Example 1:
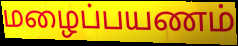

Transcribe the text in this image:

மழைப்பயணம்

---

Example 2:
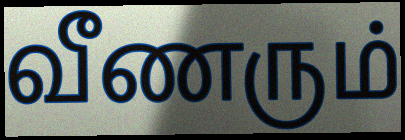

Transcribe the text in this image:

வீணரும்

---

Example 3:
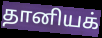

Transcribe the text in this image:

தானியக்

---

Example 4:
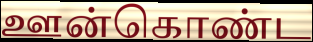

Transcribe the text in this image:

ஊன்கொண்ட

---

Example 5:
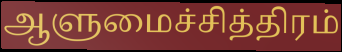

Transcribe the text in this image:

ஆளுமைச்சித்திரம்